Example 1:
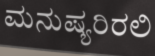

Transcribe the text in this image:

ಮನುಷ್ಯರಿರಲಿ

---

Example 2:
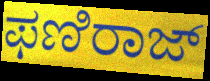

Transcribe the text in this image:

ಫಣಿರಾಜ್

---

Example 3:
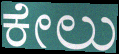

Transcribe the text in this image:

ಕೇಲು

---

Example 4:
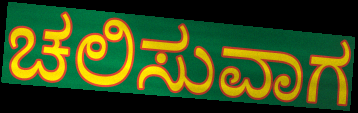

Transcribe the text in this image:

ಚಲಿಸುವಾಗ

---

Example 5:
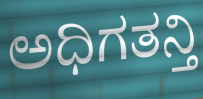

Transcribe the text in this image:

ಅಧಿಗತನ್ತಿ